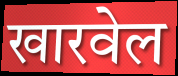
खारवेल